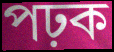
পঢ়ক